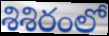
శిశిరంలో